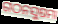
ଗଠନସୁଷମା